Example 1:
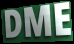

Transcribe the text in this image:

DME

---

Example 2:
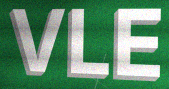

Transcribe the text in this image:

VLE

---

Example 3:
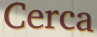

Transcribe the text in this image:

Cerca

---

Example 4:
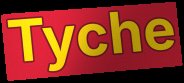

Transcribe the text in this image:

Tyche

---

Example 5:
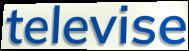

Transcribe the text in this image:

televise